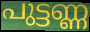
പുട്ടണ്ണ